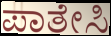
ಪಾತೇಸಿ